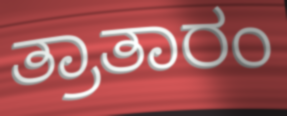
ತ್ರಾತಾರಂ